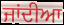
ਜਾਂਦੀਆ